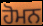
ਹੋਮਨ